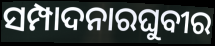
ସମ୍ପାଦନାରଘୁବୀର